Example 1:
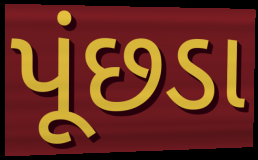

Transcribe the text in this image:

પૂંછડા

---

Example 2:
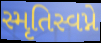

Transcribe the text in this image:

સ્મૃતિસ્વપ્ને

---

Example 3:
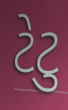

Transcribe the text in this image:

ટેટુ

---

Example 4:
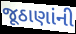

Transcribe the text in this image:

જૂઠાણાંની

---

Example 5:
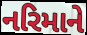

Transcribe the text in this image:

નરિમાને